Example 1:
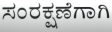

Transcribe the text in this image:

ಸಂರಕ್ಷಣೆಗಾಗಿ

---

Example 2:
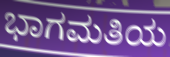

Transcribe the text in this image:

ಭಾಗಮತಿಯ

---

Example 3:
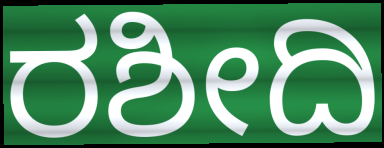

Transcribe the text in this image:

ರಶೀದಿ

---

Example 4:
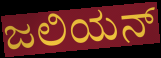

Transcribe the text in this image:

ಜಲಿಯನ್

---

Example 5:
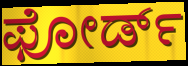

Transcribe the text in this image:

ಫೋರ್ಡ್